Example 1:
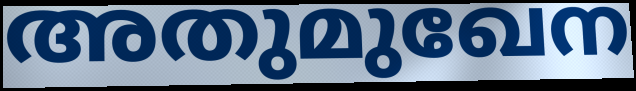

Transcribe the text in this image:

അതുമുഖേന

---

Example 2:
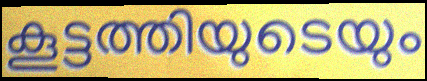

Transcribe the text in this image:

കൂട്ടത്തിയുടെയും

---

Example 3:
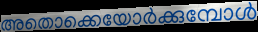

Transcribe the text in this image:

അതൊക്കെയോർക്കുമ്പോൾ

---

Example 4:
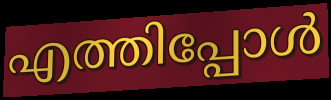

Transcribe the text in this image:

എത്തിപ്പോൾ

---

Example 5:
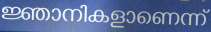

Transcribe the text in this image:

ജ്ഞാനികളാണെന്ന്